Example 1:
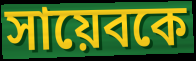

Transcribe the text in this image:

সায়েবকে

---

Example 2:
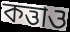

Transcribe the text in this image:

কত্তাও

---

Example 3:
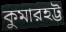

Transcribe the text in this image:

কুমারহট্ট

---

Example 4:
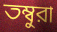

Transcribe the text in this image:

তম্বুরা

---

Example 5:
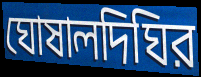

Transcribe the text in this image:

ঘোষালদিঘির